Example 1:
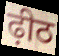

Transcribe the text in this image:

ढ़ीठ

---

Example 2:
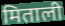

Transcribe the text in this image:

मिताली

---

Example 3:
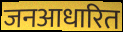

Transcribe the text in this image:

जनआधारित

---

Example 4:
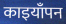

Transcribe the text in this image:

काइयाँपन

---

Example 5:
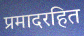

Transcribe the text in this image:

प्रमादरहित